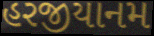
હરજીયાનમ